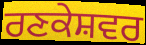
ਰਣਕੇਸ਼ਵਰ